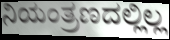
ನಿಯಂತ್ರಣದಲ್ಲಿಲ್ಲ